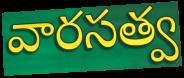
వారసత్వ